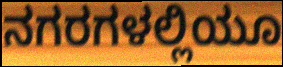
ನಗರಗಳಲ್ಲಿಯೂ